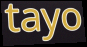
tayo